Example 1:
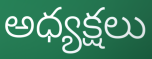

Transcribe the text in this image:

అధ్యక్షలు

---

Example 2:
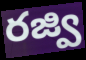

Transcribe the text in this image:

రజ్వి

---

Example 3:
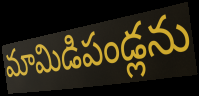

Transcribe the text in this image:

మామిడిపండ్లను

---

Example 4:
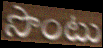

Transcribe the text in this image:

సొంటు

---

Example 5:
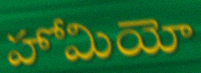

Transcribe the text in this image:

హోమియో